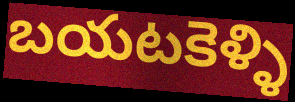
బయటకెళ్ళి